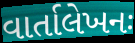
વાર્તાલેખનઃ